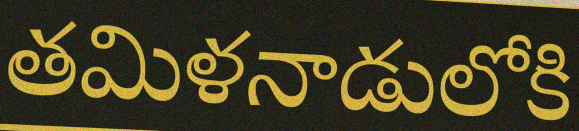
తమిళనాడులోకి